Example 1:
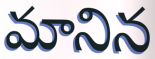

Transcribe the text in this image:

మానిన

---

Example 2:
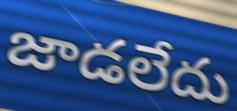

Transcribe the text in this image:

జాడలేదు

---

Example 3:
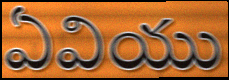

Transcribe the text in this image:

ఏవియు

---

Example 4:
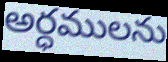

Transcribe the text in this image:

అర్ధములను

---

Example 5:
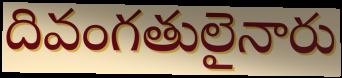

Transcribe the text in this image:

దివంగతులైనారు